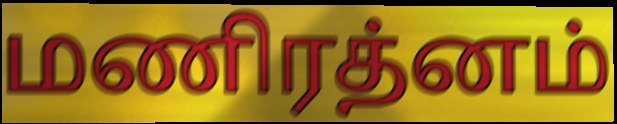
மணிரத்னம்